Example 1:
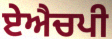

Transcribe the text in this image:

ਏਐਚਪੀ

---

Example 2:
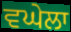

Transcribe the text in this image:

ਵਘੇਲਾ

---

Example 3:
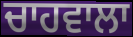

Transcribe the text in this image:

ਚਾਹਵਾਲਾ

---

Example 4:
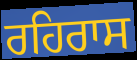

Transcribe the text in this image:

ਰਹਿਰਾਸ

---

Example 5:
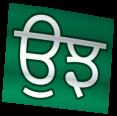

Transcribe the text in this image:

ਉਝ